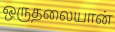
ஒருதலையான்